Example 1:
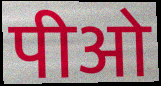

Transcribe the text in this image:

पीओ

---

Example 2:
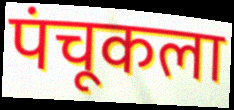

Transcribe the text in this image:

पंचूकला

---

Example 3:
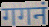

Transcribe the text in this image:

गगनं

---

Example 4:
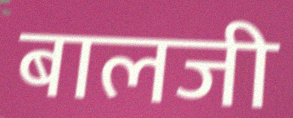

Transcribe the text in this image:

बालजी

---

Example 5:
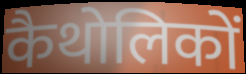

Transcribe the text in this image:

कैथोलिकों